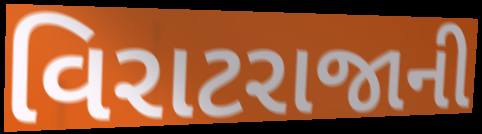
વિરાટરાજાની